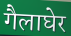
गैलाघेर